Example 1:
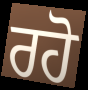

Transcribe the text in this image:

ਰਹੋ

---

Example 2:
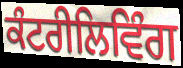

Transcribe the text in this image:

ਕੰਟਰੀਲਿਵਿੰਗ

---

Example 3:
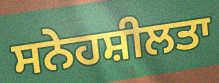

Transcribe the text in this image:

ਸਨੇਹਸ਼ੀਲਤਾ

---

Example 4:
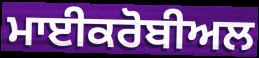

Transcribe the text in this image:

ਮਾਈਕਰੋਬੀਅਲ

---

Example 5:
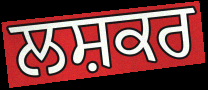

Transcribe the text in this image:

ਲਸ਼ਕਰ